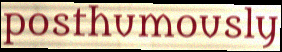
posthumously